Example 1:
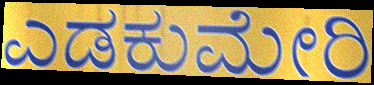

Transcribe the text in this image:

ಎಡಕುಮೇರಿ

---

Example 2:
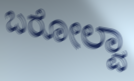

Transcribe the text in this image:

ಬರೋಲ್ವಾ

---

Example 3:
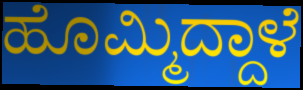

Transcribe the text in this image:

ಹೊಮ್ಮಿದ್ದಾಳೆ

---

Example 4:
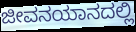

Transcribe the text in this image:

ಜೀವನಯಾನದಲ್ಲಿ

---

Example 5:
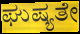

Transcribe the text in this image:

ಘುಷ್ಯತೇ